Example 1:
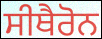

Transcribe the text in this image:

ਸੀਥੈਰੋਨ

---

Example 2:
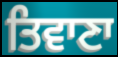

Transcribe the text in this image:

ਤਿਵਾਣਾ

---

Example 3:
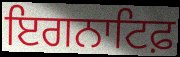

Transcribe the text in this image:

ਇਗਨਾਟਿਫ਼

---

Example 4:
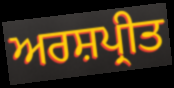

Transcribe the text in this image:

ਅਰਸ਼ਪ੍ਰੀਤ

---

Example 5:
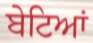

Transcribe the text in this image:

ਬੇਟਿਆਂ